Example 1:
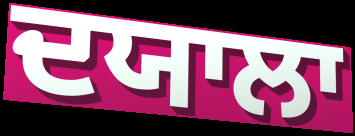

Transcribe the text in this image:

ਦਯਾਲਾ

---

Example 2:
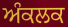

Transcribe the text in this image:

ਅੰਕਲਕ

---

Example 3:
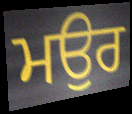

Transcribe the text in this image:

ਮਉਰ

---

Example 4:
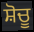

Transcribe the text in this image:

ਸ਼ੋਚੂ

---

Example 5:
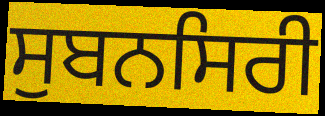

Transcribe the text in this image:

ਸੁਬਨਸਿਰੀ